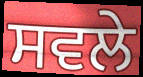
ਸਵਲੇ